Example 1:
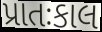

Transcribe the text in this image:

પ્રાતઃકાલ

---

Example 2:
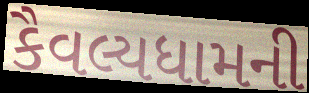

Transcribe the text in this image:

કૈવલ્યધામની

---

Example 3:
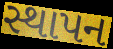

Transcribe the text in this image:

સ્થાપન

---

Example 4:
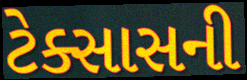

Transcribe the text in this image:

ટેક્સાસની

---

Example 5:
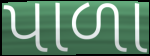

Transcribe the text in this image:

પાળા